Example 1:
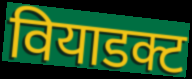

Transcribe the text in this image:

वियाडक्ट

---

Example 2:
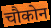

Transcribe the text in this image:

चौकोन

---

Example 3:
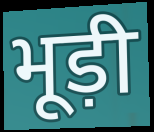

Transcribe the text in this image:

भूड़ी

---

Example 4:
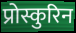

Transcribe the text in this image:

प्रोस्कुरिन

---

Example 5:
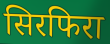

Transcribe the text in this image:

सिरफिरा